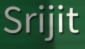
Srijit